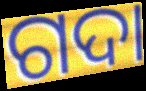
ଗଦା